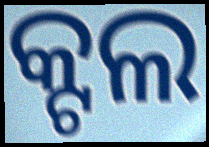
କ୍ଟଲ